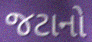
જટાનો